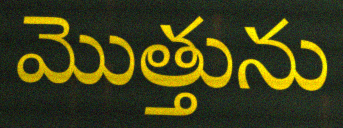
మొత్తును